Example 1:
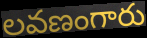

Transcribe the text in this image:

లవణంగారు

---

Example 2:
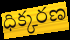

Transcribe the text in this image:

ధిక్కరణ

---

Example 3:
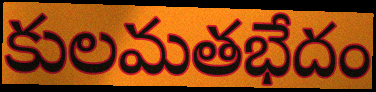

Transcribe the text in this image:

కులమతభేదం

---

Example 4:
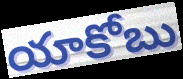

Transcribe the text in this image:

యాకోబు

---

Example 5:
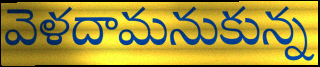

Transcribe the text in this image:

వెళదామనుకున్న